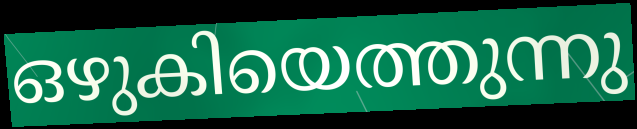
ഒഴുകിയെത്തുന്നു